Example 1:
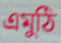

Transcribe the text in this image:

এমুঠি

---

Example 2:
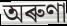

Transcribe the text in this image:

অৰুণা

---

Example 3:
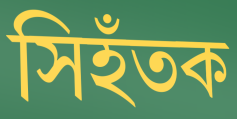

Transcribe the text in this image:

সিহঁতক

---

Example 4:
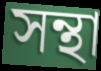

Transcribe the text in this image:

সন্থা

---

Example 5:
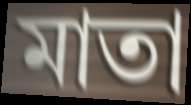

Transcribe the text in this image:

মাতা